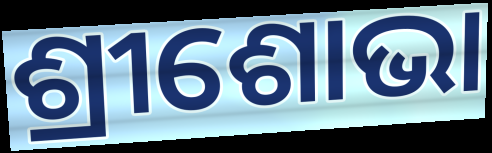
ଶ୍ରୀଶୋଭା